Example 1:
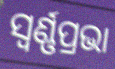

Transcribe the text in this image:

ସ୍ୱର୍ଣ୍ଣପ୍ରଭା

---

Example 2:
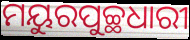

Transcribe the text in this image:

ମୟୁରପୁଚ୍ଛଧାରୀ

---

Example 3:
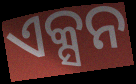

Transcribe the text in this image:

ଏକ୍ସନ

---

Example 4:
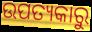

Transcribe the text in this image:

ଉପତ୍ୟକାରୁ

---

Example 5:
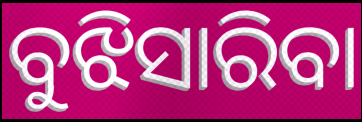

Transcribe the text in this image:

ବୁଝିସାରିବା